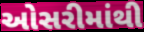
ઓસરીમાંથી